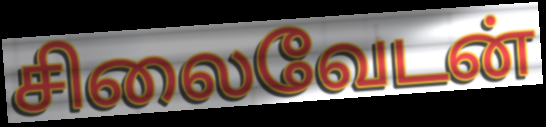
சிலைவேடன்